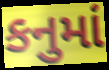
કનુમાં